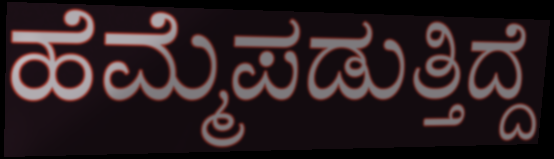
ಹೆಮ್ಮೆಪಡುತ್ತಿದ್ದೆ